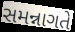
સમન્નાગતે